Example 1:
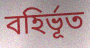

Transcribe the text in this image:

বহির্ভূত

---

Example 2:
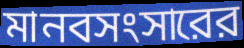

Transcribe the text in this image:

মানবসংসারের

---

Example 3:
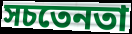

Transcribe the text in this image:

সচতেনতা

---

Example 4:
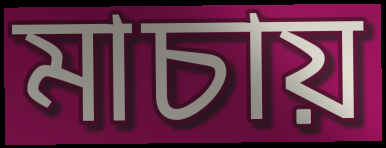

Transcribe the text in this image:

মাচায়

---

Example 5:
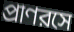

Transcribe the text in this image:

প্রাণরসে